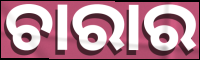
ଚାରାର